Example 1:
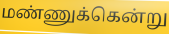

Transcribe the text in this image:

மண்ணுக்கென்று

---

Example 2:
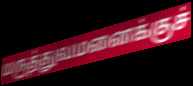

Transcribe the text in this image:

மருத்துவமனைக்குச்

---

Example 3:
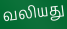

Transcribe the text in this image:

வலியது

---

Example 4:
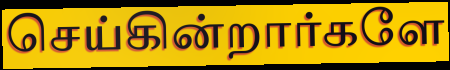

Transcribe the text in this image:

செய்கின்றார்களே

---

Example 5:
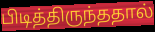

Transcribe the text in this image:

பிடித்திருந்ததால்